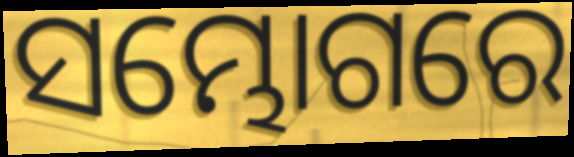
ସମ୍ଭୋଗରେ